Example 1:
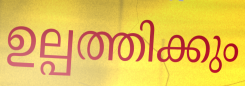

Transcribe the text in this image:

ഉല്പത്തിക്കും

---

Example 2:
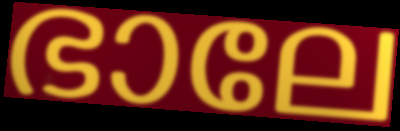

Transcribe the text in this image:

ഭാലേ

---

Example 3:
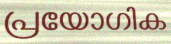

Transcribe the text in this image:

പ്രയോഗിക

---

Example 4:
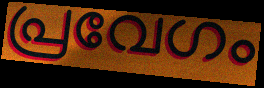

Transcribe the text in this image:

പ്രവേഗം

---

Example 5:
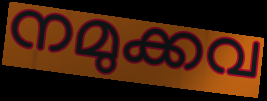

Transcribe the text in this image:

നമുക്കവ